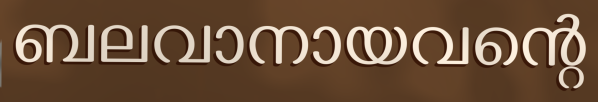
ബലവാനായവന്റെ